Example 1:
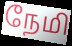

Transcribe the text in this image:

நேமி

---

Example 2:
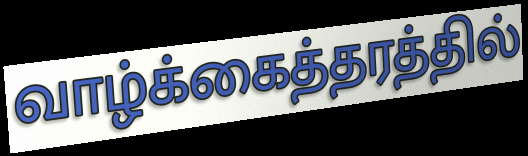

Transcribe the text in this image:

வாழ்க்கைத்தரத்தில்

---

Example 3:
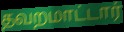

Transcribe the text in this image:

தவறமாட்டார்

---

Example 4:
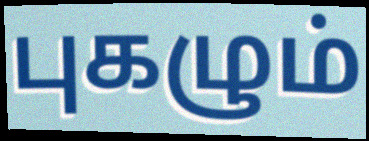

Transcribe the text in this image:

புகழும்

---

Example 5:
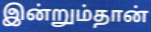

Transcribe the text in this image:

இன்றும்தான்